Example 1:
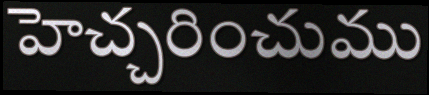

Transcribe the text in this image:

హెచ్చరించుము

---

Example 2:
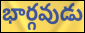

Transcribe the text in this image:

భార్గవుడు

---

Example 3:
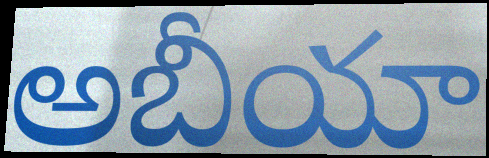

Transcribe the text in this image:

అబీయా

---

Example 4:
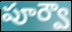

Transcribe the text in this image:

పూర్వౌ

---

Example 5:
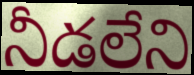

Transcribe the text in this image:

నీడలేని